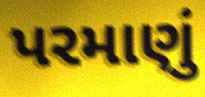
પરમાણું